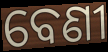
ବେଣୀ